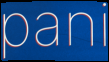
pani